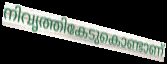
നിവൃത്തികേടുകൊണ്ടാണ്